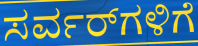
ಸರ್ವರ್‌ಗಳಿಗೆ